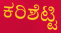
ಕರಿಶೆಟ್ಟಿ